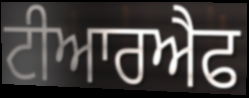
ਟੀਆਰਐਫ